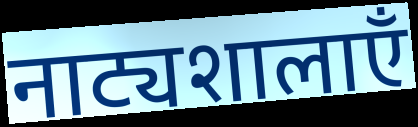
नाट्यशालाएँ